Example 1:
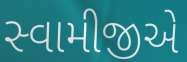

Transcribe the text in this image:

સ્વામીજીએ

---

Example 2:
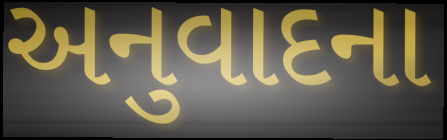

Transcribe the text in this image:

અનુવાદના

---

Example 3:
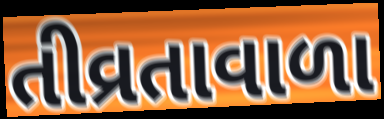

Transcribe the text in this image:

તીવ્રતાવાળા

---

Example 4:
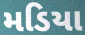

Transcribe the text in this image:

મડિયા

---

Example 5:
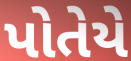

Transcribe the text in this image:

પોતેયે